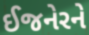
ઈજનેરને